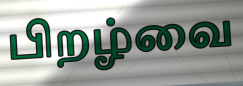
பிறழ்வை